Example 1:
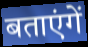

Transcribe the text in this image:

बताएंगें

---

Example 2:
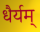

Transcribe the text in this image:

धैर्यम्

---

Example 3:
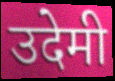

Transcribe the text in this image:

उदेमी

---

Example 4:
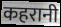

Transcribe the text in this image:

कहरानी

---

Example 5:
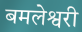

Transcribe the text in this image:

बमलेश्वरी